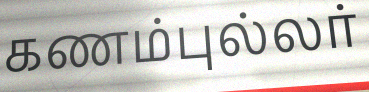
கணம்புல்லர்